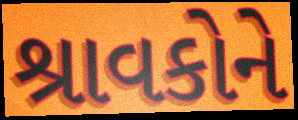
શ્રાવકોને